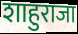
शाहुराजा